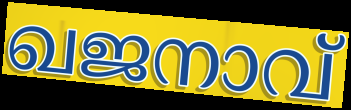
ഖജനാവ്